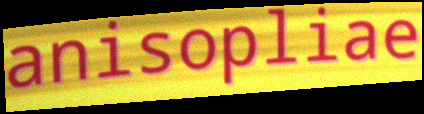
anisopliae